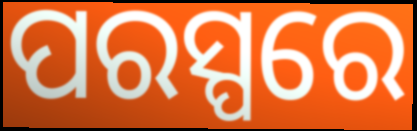
ପରସ୍ପରେ